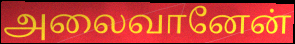
அலைவானேன்